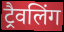
ट्रैवलिंग